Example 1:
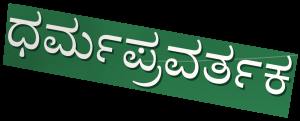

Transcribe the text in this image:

ಧರ್ಮಪ್ರವರ್ತಕ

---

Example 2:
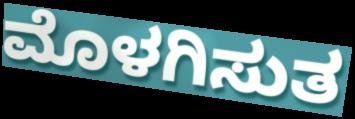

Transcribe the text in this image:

ಮೊಳಗಿಸುತ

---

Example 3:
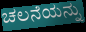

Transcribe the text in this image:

ಚಲನೆಯನ್ನು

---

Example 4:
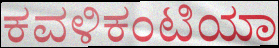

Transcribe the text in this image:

ಕವಳಿಕಂಟಿಯಾ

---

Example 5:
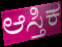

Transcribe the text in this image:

ಆಸ್ತಿಕ